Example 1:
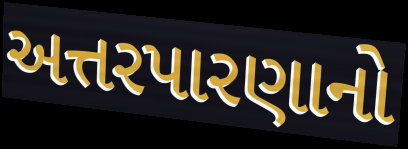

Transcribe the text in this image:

અત્તરપારણાનો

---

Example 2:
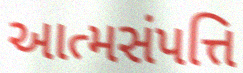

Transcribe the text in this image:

આત્મસંપત્તિ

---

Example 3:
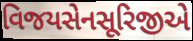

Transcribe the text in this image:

વિજયસેનસૂરિજીએ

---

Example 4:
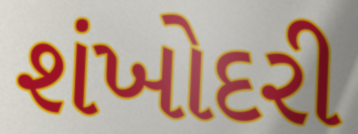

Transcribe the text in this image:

શંખોદરી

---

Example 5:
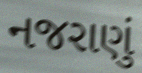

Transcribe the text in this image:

નજરાણું